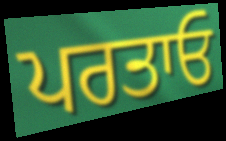
ਪਰਤਾਓ